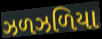
ઝળઝળિયા